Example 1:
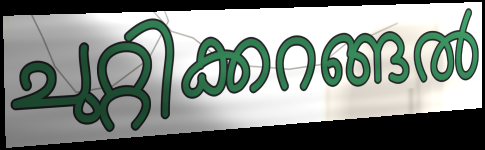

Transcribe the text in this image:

ചുറ്റിക്കറങ്ങൽ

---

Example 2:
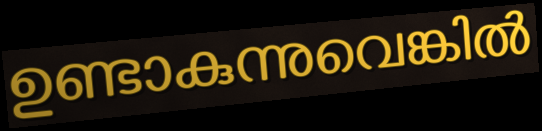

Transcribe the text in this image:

ഉണ്ടാകുന്നുവെങ്കിൽ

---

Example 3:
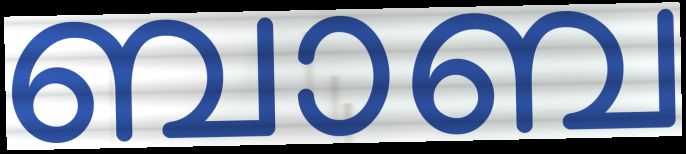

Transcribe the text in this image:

ബാബ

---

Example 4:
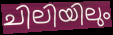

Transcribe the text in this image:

ചിലിയിലും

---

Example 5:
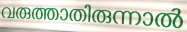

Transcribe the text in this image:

വരുത്താതിരുന്നാൽ